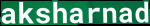
aksharnad